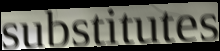
substitutes